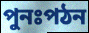
পুনঃপঠন